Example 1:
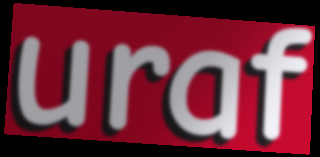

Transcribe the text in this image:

uraf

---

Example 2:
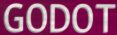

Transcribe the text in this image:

GODOT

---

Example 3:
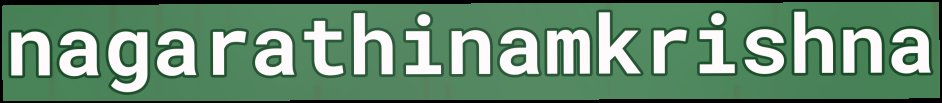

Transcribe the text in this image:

nagarathinamkrishna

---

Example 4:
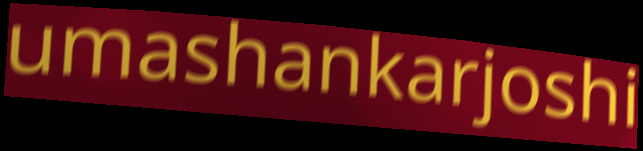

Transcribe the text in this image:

umashankarjoshi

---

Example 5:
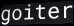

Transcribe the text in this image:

goiter